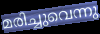
മരിച്ചുവെന്നു